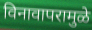
विनावापरामुळे